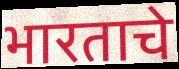
भारताचे